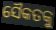
ସୈକତକୁ